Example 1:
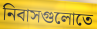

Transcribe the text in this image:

নিবাসগুলোতে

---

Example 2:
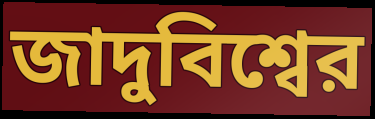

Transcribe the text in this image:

জাদুবিশ্বের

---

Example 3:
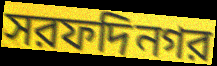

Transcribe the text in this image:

সরফদিনগর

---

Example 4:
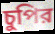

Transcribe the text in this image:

চুপির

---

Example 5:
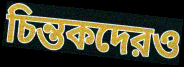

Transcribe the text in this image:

চিন্তকদেরও